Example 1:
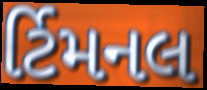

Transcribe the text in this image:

ર્ટિમનલ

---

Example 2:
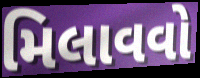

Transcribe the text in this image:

મિલાવવો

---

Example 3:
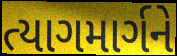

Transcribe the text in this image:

ત્યાગમાર્ગને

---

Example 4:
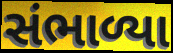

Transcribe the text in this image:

સંભાળ્યા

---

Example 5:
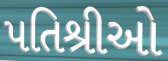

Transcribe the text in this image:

પતિશ્રીઓ